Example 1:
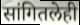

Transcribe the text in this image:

सांगितलेही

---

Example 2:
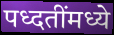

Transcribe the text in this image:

पध्दतींमध्ये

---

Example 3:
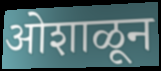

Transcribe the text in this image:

ओशाळून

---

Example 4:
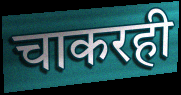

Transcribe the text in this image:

चाकरही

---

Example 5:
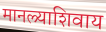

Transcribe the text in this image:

मानल्याशिवाय